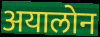
अयालोन